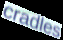
cradles